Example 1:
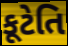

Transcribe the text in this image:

કૂટેતિ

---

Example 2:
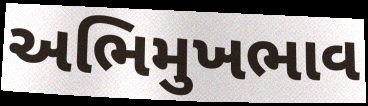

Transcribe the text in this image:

અભિમુખભાવ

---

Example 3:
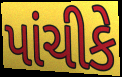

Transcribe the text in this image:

પાંચીકે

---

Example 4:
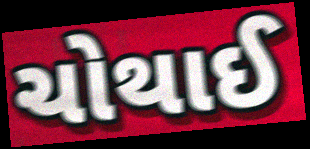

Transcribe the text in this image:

ચોથાઈ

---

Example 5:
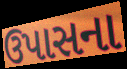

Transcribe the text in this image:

ઉપાસના